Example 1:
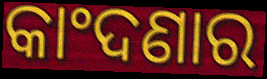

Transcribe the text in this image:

କାଂଦଣାର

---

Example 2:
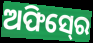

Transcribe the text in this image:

ଅଫିସ୍‍ରେ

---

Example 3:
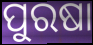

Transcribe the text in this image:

ପୁରଷା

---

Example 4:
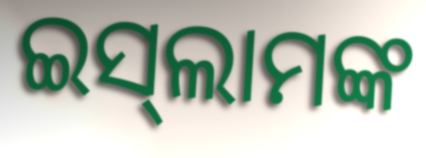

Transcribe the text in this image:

ଇସ୍‌ଲାମଙ୍କ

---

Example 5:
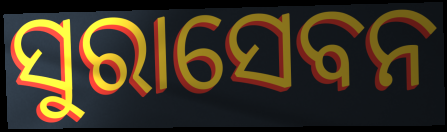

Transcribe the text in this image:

ସୁରାସେବନ